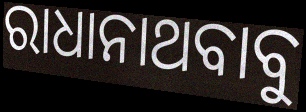
ରାଧାନାଥବାବୁ